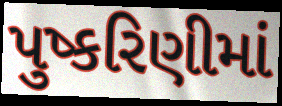
પુષ્કરિણીમાં